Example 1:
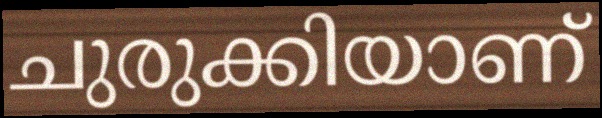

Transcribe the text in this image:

ചുരുക്കിയാണ്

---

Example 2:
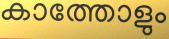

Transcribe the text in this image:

കാത്തോളും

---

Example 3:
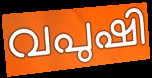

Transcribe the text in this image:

വപുഷി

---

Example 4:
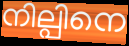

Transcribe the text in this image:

നില്പിനെ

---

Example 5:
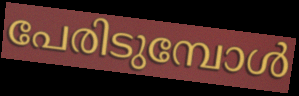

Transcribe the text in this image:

പേരിടുമ്പോൾ